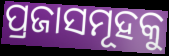
ପ୍ରଜାସମୂହକୁ